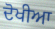
ਦੋਖੀਆ